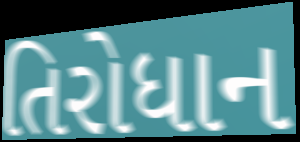
તિરોધાન